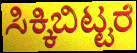
ಸಿಕ್ಕಿಬಿಟ್ಟರೆ